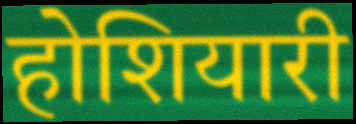
होशियारी